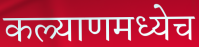
कल्याणमध्येच